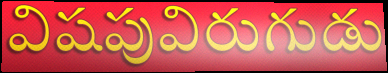
విషపువిరుగుడు